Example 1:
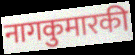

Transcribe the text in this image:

नागकुमारकी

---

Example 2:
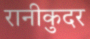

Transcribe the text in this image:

रानीकुदर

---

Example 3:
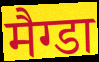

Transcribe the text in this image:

मैग्डा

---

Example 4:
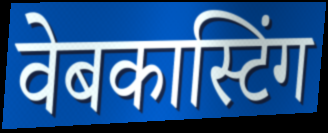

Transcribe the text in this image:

वेबकास्टिंग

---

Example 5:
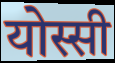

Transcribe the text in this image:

योस्सी